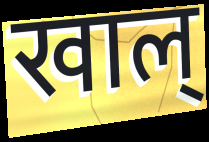
खाल्